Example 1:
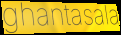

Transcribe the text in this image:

ghantasala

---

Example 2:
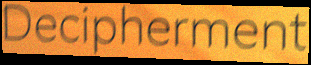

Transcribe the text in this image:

Decipherment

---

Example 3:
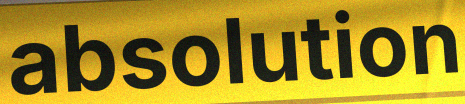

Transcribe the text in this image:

absolution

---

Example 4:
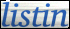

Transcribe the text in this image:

listin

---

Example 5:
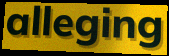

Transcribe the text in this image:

alleging